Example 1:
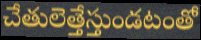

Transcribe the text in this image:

చేతులెత్తేస్తుండటంతో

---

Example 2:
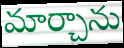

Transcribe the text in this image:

మార్చాను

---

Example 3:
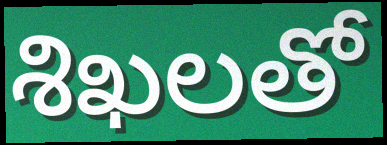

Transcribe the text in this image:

శిఖలతో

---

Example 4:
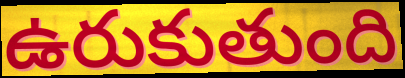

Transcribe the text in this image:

ఉరుకుతుంది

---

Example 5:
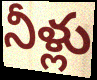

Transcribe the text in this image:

నీళ్లు